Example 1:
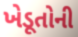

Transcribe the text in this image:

ખેડૂતોની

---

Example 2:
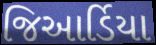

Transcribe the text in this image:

જિઆર્ડિયા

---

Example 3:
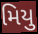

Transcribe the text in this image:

મિયુ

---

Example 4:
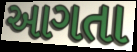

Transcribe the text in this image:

આગતા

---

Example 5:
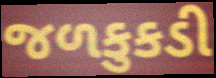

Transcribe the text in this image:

જળકુકડી